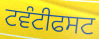
ਟਵੰਟੀਫਸਟ